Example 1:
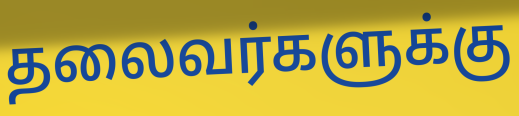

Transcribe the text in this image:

தலைவர்களுக்கு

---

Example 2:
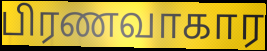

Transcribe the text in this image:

பிரணவாகார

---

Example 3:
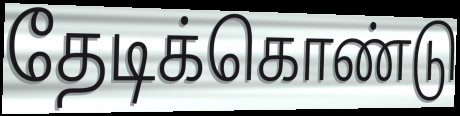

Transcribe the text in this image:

தேடிக்கொண்டு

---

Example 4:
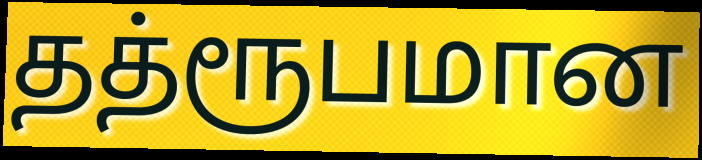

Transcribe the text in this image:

தத்ரூபமான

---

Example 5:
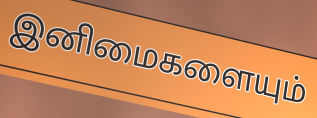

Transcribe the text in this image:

இனிமைகளையும்